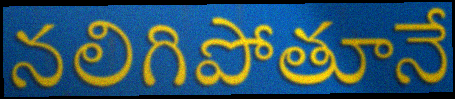
నలిగిపోతూనే